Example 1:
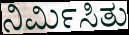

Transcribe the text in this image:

ನಿರ್ಮಿಸಿತು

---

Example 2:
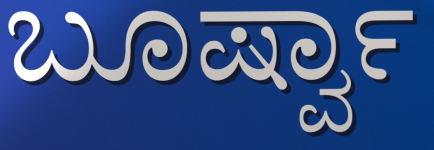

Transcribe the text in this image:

ಬೂರ್ಷ್ವಾ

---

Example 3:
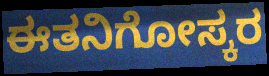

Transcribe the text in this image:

ಈತನಿಗೋಸ್ಕರ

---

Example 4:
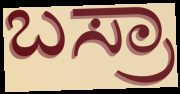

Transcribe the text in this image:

ಬಸ್ರಾ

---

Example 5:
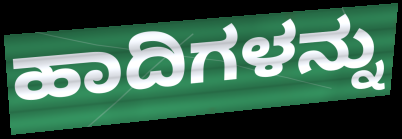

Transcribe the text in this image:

ಹಾದಿಗಳನ್ನು